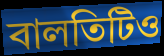
বালতিটিও